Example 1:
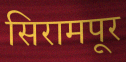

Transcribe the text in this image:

सिरामपूर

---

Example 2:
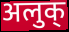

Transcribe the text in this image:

अलुक्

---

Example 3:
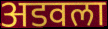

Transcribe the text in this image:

अडवला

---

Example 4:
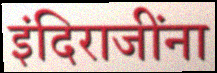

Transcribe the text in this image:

इंदिराजींना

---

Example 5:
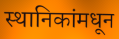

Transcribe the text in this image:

स्थानिकांमधून